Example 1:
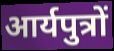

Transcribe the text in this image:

आर्यपुत्रों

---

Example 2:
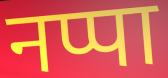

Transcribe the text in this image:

नप्पा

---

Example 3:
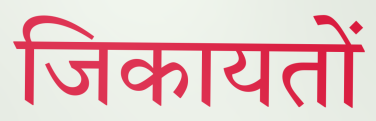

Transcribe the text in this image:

जिकायतों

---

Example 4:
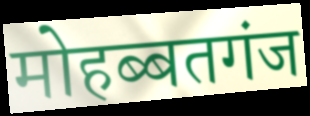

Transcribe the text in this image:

मोहब्बतगंज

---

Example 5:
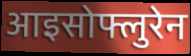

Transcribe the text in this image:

आइसोफ्लुरेन